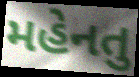
મહેનતુ